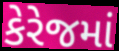
કેરેજમાં